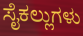
ಸೈಕಲ್ಲುಗಳು